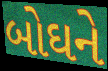
બોઘને